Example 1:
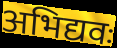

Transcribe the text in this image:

अभिद्यवः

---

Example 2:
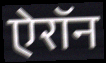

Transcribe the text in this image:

ऐरॉन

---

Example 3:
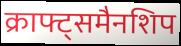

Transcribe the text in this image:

क्राफ्ट्समैनशिप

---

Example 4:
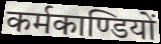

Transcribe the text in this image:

कर्मकाण्डियों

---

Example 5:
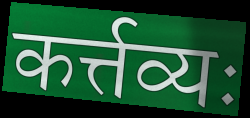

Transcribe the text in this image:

कर्त्तव्यः